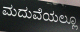
ಮದುವೆಯಲ್ಲೂ